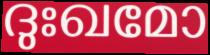
ദുഃഖമോ